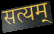
सत्यम्